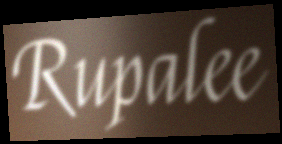
Rupalee